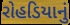
રોહડિયાનું